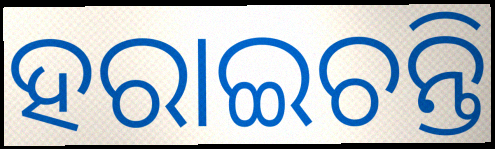
ହରାଇଚନ୍ତି